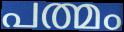
പത്മം